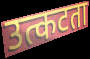
उत्कटता